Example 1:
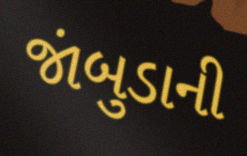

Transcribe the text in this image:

જાંબુડાની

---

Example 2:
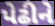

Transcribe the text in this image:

પેઢીને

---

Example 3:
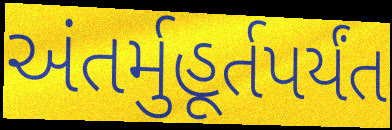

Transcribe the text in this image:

અંતર્મુહૂર્તપર્યંત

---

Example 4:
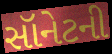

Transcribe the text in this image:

સૉનેટની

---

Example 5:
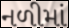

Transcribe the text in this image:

નળીમાં